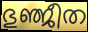
ഭുഞ്ജീത